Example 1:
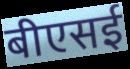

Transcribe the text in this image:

बीएसई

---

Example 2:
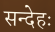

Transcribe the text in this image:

सन्देहः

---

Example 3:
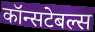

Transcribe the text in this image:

कॉन्सटेबल्स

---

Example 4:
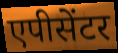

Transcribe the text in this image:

एपीसेंटर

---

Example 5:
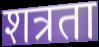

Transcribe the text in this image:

शत्रता